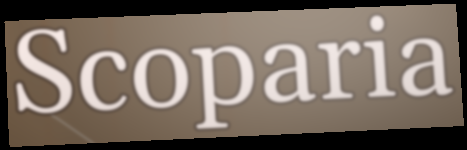
Scoparia